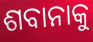
ଶବାନାକୁ